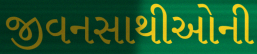
જીવનસાથીઓની